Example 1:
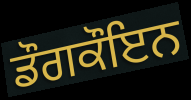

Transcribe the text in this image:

ਡੌਗਕੌਇਨ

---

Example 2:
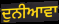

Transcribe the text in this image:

ਦੁਨੀਆਵਾ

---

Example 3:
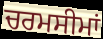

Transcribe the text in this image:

ਚਰਮਸੀਮਾਂ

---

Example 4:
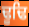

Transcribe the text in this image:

ਢੂਢਿ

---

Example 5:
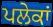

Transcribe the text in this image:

ਪਲੇਕਾਂ